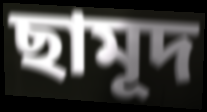
ছামূদ